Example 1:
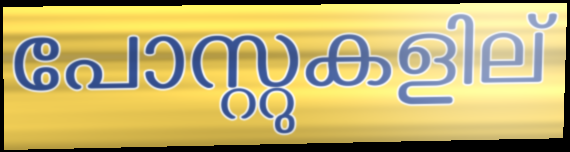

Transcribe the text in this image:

പോസ്റ്റുകളില്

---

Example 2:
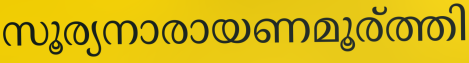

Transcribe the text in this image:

സൂര്യനാരായണമൂര്ത്തി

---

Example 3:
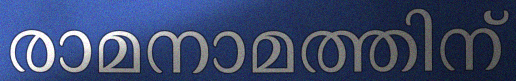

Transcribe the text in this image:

രാമനാമത്തിന്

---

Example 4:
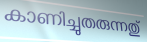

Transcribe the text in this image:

കാണിച്ചുതരുന്നതു്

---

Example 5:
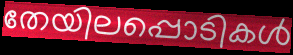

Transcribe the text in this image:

തേയിലപ്പൊടികൾ